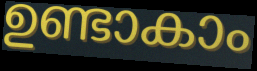
ഉണ്ടാകാം